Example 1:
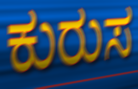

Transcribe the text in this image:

ಕುರುಸ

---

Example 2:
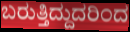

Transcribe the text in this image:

ಬರುತ್ತಿದ್ದುದರಿಂದ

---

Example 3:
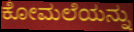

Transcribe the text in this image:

ಕೋಮಲೆಯನ್ನು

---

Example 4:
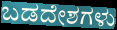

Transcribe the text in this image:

ಬಡದೇಶಗಳು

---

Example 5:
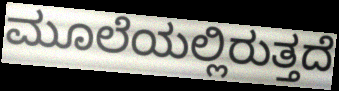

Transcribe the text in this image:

ಮೂಲೆಯಲ್ಲಿರುತ್ತದೆ